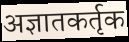
अज्ञातकर्तृक